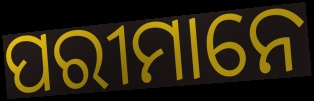
ପରୀମାନେ